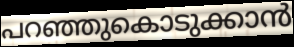
പറഞ്ഞുകൊടുക്കാൻ